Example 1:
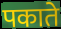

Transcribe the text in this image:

पकाते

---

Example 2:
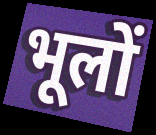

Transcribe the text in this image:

भूलों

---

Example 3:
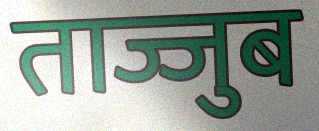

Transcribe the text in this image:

ताज्जुब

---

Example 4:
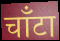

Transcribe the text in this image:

चाँटा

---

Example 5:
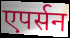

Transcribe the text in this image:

एपर्सन